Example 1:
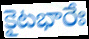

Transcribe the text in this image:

కైటభారేః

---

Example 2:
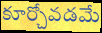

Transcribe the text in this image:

కూర్చోవడమే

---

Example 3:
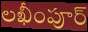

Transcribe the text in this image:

లఖీంపూర్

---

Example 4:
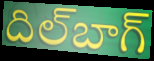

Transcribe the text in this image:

దిల్‌బాగ్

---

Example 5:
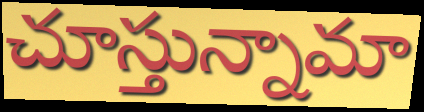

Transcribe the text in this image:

చూస్తున్నామా